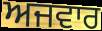
ਅਜਵਾਰ